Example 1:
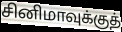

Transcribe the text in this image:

சினிமாவுக்குத்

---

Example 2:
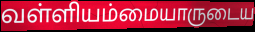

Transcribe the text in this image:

வள்ளியம்மையாருடைய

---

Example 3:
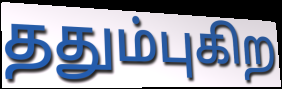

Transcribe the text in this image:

ததும்புகிற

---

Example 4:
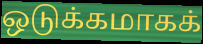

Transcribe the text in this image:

ஒடுக்கமாகக்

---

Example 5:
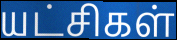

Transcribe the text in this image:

யட்சிகள்